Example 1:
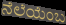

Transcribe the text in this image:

ನೆಲೆಯೆಂಬ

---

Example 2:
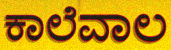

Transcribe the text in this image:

ಕಾಲೆವಾಲ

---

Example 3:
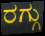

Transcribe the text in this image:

ರಗ್ಗು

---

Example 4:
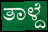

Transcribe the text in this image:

ತಾಳ್ದೆ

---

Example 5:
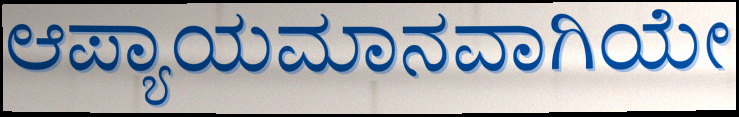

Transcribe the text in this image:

ಆಪ್ಯಾಯಮಾನವಾಗಿಯೇ